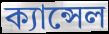
ক্যান্সেল